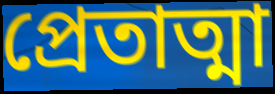
প্রেতাত্মা